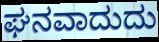
ಘನವಾದುದು